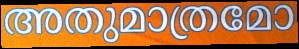
അതുമാത്രമോ